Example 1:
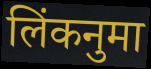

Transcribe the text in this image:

लिंकनुमा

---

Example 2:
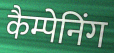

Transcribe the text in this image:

कैम्पेनिंग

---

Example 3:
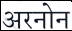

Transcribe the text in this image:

अरनोन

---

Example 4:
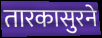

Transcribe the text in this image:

तारकासुरने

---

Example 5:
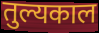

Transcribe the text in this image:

तुल्यकाल